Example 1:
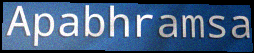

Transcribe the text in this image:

Apabhramsa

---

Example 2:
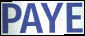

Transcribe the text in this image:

PAYE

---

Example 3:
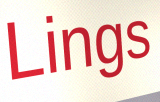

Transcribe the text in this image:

Lings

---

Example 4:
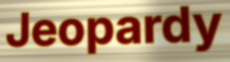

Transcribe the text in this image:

Jeopardy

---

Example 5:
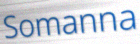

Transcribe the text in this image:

Somanna